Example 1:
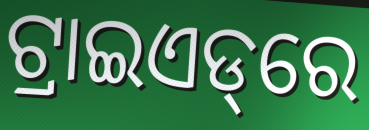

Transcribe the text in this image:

ଟ୍ରାଇଏଡ୍‌ରେ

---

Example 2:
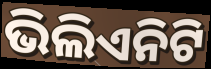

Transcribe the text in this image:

ଭିଲିଏନିଟି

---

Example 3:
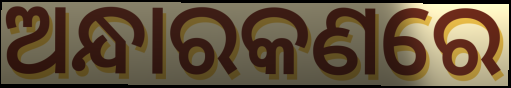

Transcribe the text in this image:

ଅନ୍ଧାରକଣରେ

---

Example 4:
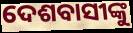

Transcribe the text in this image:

ଦେଶବାସୀଙ୍କୁ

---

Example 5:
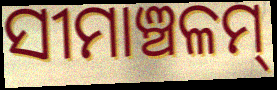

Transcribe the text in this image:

ସୀମାଞ୍ଚଳମ୍